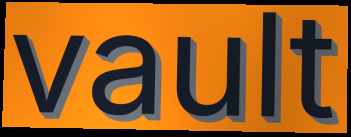
vault